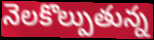
నెలకొల్పుతున్న